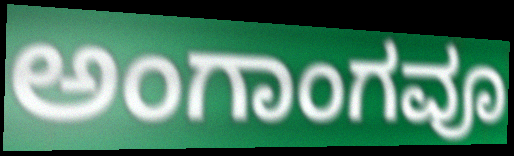
ಅಂಗಾಂಗವೂ